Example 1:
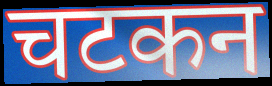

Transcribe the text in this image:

चटकन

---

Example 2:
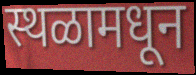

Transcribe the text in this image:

स्थळामधून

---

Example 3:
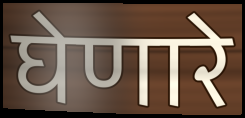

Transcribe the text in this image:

घेणारे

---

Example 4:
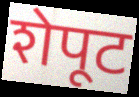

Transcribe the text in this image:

शेपूट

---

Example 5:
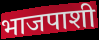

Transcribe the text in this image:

भाजपाशी